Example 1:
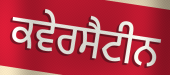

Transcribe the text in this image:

ਕਵੇਰਸੈਟੀਨ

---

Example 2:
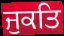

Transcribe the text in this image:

ਜੁਕਤਿ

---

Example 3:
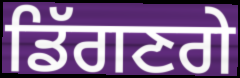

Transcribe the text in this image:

ਡਿੱਗਣਗੇ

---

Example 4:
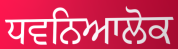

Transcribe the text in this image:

ਧਵਨਿਆਲੋਕ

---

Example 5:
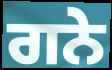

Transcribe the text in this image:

ਗਨੇ